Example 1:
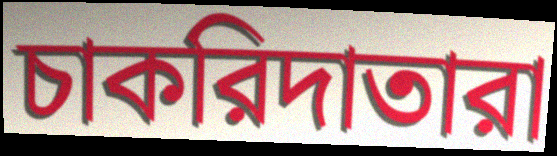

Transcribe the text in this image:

চাকরিদাতারা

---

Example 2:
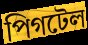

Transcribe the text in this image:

পিগটেল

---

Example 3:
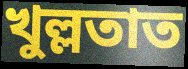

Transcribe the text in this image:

খুল্লতাত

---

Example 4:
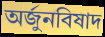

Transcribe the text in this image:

অর্জুনবিষাদ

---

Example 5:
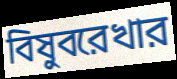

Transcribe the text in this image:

বিষুবরেখার